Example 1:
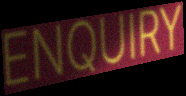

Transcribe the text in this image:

ENQUIRY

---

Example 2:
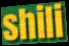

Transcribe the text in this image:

shili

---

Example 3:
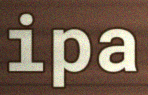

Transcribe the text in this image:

ipa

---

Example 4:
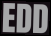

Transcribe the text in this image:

EDD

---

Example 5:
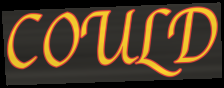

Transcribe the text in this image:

COULD